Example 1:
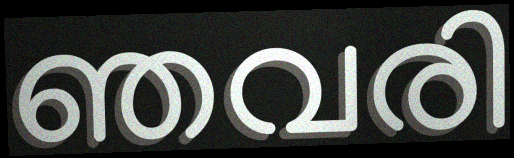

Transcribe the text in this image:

ഞവരി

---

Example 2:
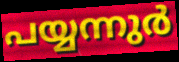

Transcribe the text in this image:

പയ്യന്നുർ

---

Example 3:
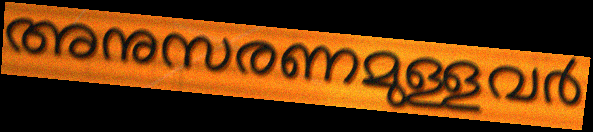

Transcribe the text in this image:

അനുസരണമുള്ളവർ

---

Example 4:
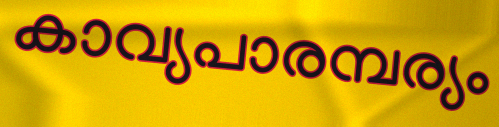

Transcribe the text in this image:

കാവ്യപാരമ്പര്യം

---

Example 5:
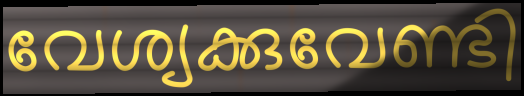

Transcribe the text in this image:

വേശ്യക്കുവേണ്ടി